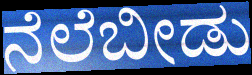
ನೆಲೆಬೀಡು